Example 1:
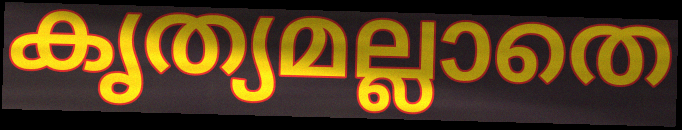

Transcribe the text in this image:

കൃത്യമല്ലാതെ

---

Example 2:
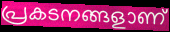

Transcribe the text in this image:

പ്രകടനങ്ങളാണ്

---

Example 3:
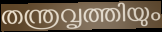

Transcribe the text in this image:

തന്ത്രവൃത്തിയും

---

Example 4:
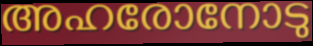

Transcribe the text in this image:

അഹരോനോടു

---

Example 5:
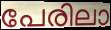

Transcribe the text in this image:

പേരിലാ